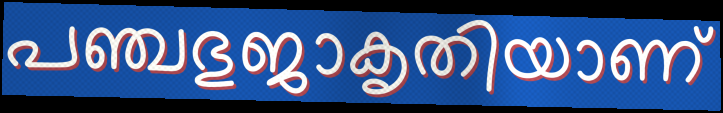
പഞ്ചഭുജാകൃതിയാണ്